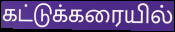
கட்டுக்கரையில்